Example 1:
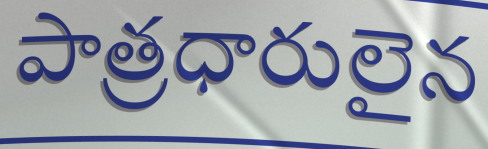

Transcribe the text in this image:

పాత్రధారులైన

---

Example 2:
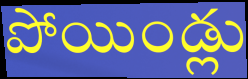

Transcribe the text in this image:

పోయిండ్లు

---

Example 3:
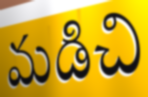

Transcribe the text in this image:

మడిచి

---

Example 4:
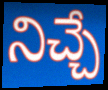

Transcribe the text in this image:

నిచ్చే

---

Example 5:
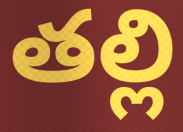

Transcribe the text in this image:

తల్లి